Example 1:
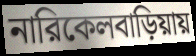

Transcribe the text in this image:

নারিকেলবাড়িয়ায়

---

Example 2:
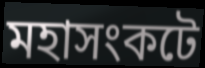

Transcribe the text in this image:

মহাসংকটে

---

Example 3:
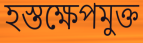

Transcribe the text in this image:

হস্তক্ষেপমুক্ত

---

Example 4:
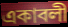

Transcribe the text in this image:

একাবলী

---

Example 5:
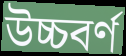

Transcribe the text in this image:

উচ্চবর্ণ